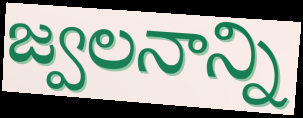
జ్వలనాన్ని